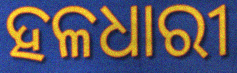
ହଳଧାରୀ